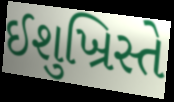
ઈશુખ્રિસ્તે